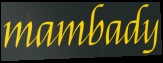
mambady